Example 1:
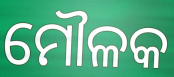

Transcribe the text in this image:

ମୌଳକ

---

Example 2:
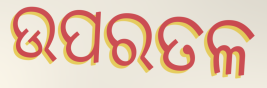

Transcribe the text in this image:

ଉପରତଳ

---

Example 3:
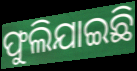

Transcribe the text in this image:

ଫୁଲିଯାଇଛି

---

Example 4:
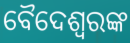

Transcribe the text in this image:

ବୈଦେଶ୍ୱରଙ୍କ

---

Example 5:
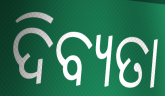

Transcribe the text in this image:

ଦିବ୍ୟତା